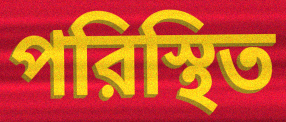
পরিস্থিত